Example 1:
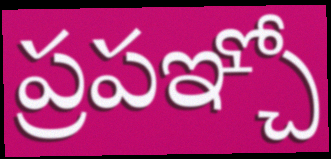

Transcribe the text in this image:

ప్రపఞ్చో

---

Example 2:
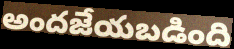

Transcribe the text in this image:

అందజేయబడింది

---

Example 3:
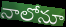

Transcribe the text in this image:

నాలోనూ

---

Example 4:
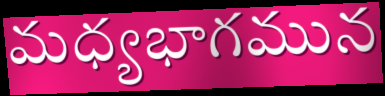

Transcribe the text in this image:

మధ్యభాగమున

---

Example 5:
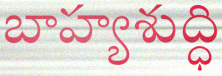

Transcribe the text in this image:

బాహ్యశుద్ధి